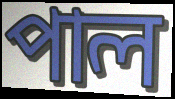
পাল